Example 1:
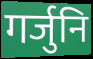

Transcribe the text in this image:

गर्जुनि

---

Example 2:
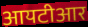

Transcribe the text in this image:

आयटीआर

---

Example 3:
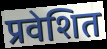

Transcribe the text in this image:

प्रवेशित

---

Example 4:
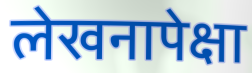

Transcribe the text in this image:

लेखनापेक्षा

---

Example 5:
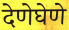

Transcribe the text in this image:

देणेघेणे